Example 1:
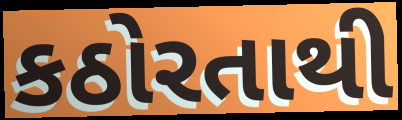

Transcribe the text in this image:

કઠોરતાથી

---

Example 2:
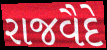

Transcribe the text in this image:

રાજવૈદે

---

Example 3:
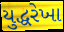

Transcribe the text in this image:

યુદ્ધરેખા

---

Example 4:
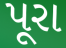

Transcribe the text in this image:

પૂરા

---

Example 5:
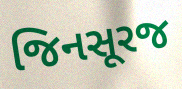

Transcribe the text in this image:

જિનસૂરજ